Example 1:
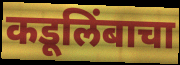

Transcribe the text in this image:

कडूलिंबाचा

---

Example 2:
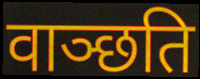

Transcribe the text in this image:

वाञ्छति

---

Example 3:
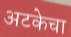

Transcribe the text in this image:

अटकेचा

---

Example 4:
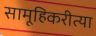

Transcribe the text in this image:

सामूहिकरीत्या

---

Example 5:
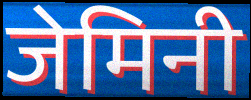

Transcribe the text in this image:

जेमिनी